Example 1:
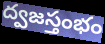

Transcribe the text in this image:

ద్వజస్తంభం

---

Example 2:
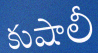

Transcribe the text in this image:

కుషాలీ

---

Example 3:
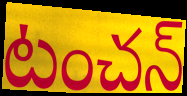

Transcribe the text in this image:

టంచన్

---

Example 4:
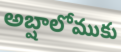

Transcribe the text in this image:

అబ్షాలోముకు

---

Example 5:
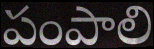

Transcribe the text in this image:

పంపాలి